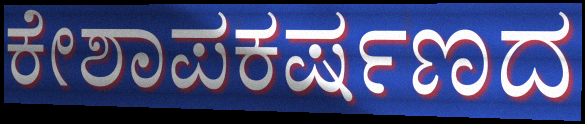
ಕೇಶಾಪಕರ್ಷಣದ